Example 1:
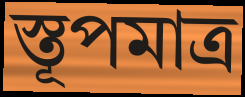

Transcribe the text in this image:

স্তূপমাত্র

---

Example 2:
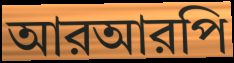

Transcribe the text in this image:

আরআরপি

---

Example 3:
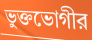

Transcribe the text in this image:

ভুক্তভোগীর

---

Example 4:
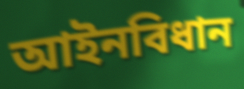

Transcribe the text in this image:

আইনবিধান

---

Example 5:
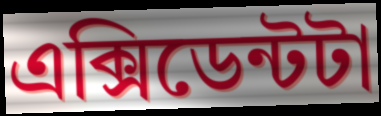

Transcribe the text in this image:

এক্সিডেন্টটা